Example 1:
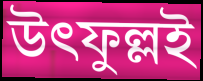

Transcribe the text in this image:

উৎফুল্লই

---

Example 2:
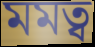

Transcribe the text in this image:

মমত্ব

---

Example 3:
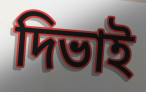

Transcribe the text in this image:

দিভাই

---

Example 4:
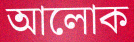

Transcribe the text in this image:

আলোক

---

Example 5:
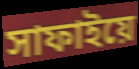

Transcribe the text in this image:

সাফাইয়ে